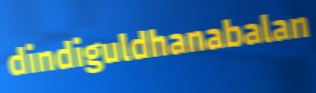
dindiguldhanabalan